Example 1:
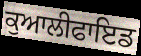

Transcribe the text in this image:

ਕੁਆਲੀਫਾਇਡ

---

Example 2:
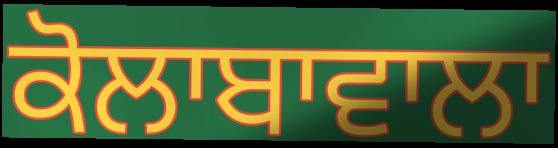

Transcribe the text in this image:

ਕੋਲਾਬਾਵਾਲਾ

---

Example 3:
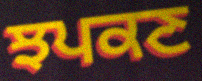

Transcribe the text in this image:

ਝਪਕਣ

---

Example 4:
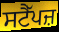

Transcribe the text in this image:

ਸਟੈੱਪਜ਼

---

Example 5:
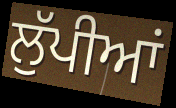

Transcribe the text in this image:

ਲੁੱਪੀਆਂ